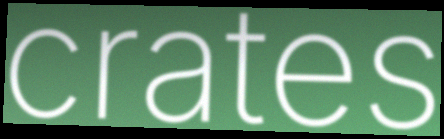
crates